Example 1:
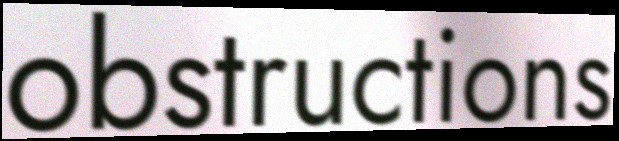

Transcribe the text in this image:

obstructions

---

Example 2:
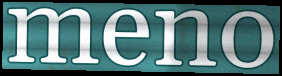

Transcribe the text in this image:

meno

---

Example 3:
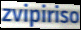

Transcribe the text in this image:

zvipiriso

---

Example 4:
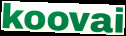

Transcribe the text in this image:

koovai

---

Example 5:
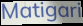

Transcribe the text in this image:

Matigari